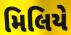
મિલિયે